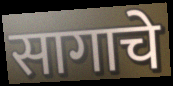
सागाचे